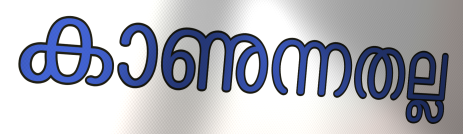
കാണുന്നതല്ല